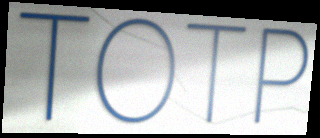
TOTP